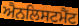
ਐਨਲਿਸਟਮੈਂਟ